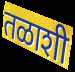
तळाशी